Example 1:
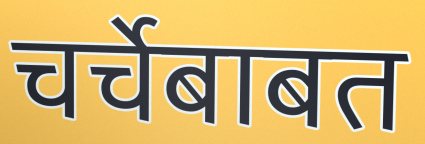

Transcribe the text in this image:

चर्चेबाबत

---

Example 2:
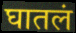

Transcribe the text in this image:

घातलं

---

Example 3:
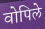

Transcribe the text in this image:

वोपिले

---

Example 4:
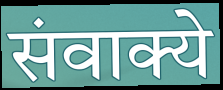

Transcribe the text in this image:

संवाक्ये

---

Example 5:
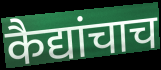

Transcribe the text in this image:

कैद्यांचाच